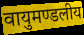
वायुमण्डलीय